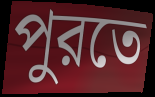
পুরতে